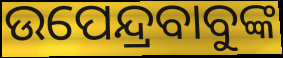
ଉପେନ୍ଦ୍ରବାବୁଙ୍କ